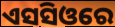
ଏସସିଓରେ